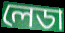
লেডা